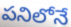
పనిలోనే